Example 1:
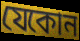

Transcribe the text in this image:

যেকোন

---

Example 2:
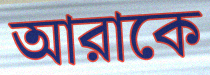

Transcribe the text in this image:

আরাকে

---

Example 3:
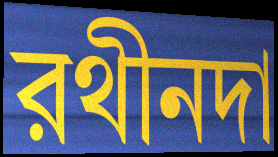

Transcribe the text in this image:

রথীনদা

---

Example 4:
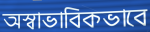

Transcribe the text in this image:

অস্বাভাবিকভাবে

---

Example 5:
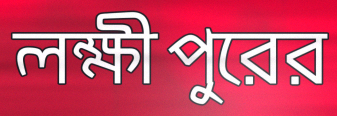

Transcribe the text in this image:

লক্ষীপুরের